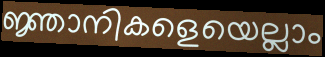
ജ്ഞാനികളെയെല്ലാം